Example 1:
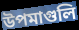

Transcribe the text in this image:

উপমাগুলি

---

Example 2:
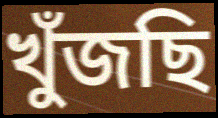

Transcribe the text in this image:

খুঁজছি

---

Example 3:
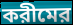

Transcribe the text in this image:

করীমের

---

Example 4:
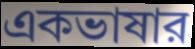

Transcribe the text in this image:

একভাষার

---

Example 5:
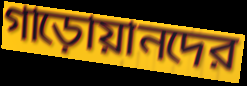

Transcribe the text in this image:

গাড়োয়ানদের